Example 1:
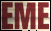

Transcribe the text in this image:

EME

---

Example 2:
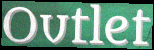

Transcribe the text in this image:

Outlet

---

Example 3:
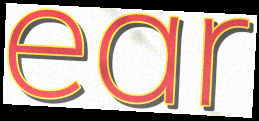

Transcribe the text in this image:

ear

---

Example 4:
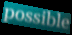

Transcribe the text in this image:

possible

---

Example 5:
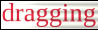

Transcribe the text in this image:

dragging